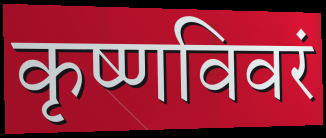
कृष्णविवरं